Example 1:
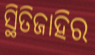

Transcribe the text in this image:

ସ୍ଥିତିଜାହିର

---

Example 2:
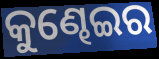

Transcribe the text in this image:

କୁଣ୍ଢେଇର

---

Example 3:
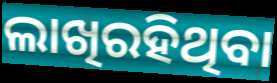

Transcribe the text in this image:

ଲାଖିରହିଥିବା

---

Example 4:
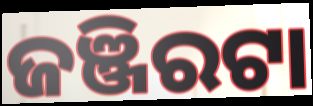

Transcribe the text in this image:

ଜଞ୍ଜିରଟା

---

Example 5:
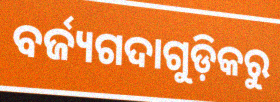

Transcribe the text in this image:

ବର୍ଜ୍ୟଗଦାଗୁଡ଼ିକରୁ